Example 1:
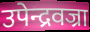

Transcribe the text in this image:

उपेन्द्रवज्रा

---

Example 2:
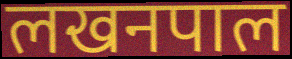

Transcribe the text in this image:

लखनपाल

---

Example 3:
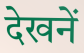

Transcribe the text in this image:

देखनें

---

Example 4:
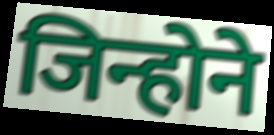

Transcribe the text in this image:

जिन्‍होने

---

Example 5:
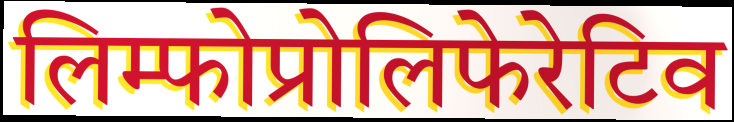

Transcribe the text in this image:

लिम्फोप्रोलिफेरेटिव